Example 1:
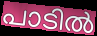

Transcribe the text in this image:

പാടിൽ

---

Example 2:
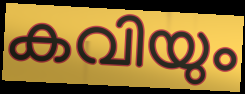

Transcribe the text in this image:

കവിയും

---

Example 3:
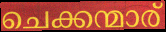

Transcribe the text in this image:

ചെക്കന്മാര്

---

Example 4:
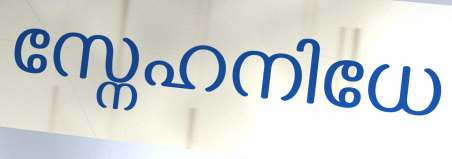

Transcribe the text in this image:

സ്നേഹനിധേ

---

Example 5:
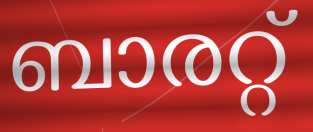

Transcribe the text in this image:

ബാരറ്റ്